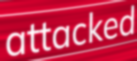
attacked